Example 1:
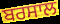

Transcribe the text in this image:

ਬਰਸਾਲ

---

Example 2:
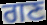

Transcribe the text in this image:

ਗਣ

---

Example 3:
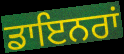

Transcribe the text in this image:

ਡਾਇਨਰਾਂ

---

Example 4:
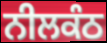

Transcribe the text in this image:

ਨੀਲਕੰਠ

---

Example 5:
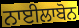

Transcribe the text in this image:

ਨਾਈਲਾਬੋਨ